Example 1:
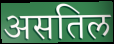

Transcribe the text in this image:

असतिल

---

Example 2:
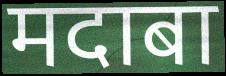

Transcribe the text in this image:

मदाबा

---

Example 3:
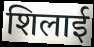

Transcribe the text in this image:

शिलाई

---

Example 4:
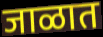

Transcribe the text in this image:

जाळात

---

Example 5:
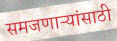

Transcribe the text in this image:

समजणाऱ्यांसाठी